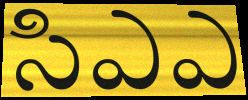
సిఎఎ